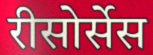
रीसोर्सेस